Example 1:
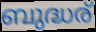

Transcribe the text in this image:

ബുദ്ധര്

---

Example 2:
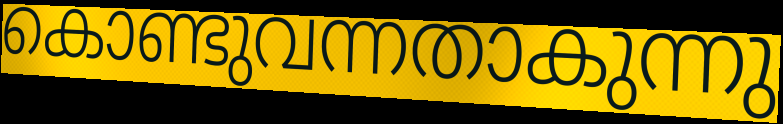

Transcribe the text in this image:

കൊണ്ടുവന്നതാകുന്നു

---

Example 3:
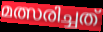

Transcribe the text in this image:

മത്സരിച്ചത്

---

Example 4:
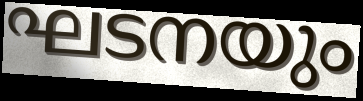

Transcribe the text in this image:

ഘടനയും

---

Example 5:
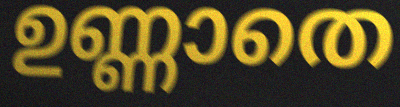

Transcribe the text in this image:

ഉണ്ണാതെ